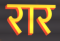
रार